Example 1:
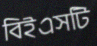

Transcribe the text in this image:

বিইএসটি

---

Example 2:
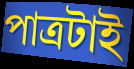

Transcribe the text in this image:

পাত্রটাই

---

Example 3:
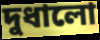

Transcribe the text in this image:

দুধালো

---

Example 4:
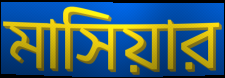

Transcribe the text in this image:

মাসিয়ার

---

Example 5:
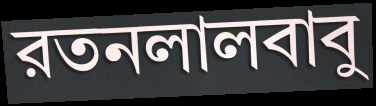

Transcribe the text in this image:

রতনলালবাবু